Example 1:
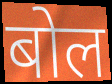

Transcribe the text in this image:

बोल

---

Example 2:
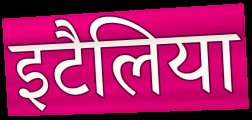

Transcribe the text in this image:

इटैलिया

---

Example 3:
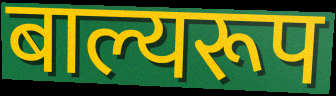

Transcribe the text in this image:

बाल्यरूप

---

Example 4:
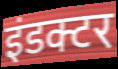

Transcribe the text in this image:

इंडक्टर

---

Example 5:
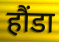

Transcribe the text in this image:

हौंडा